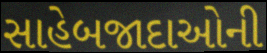
સાહેબજાદાઓની